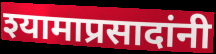
श्यामाप्रसादांनी